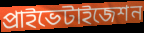
প্রাইভেটাইজেশন